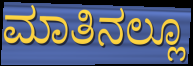
ಮಾತಿನಲ್ಲೂ